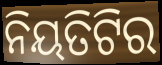
ନିୟତିଟିର